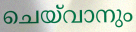
ചെയ്‌വാനും